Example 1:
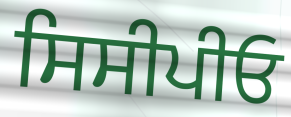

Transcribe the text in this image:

ਸਿਸੀਪੀਓ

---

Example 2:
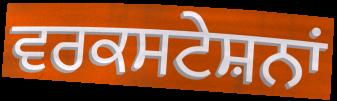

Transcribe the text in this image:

ਵਰਕਸਟੇਸ਼ਨਾਂ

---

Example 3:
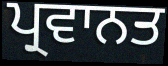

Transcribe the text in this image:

ਪ੍ਰਵਾਨਤ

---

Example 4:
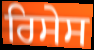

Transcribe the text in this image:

ਰਿਸੇਸ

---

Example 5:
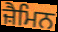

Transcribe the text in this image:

ਜ਼ੈਮਿਨ